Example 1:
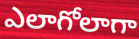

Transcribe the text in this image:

ఎలాగోలాగా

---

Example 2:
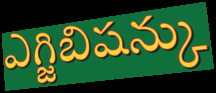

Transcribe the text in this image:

ఎగ్జిబిషన్కు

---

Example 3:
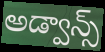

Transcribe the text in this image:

అడ్వాన్స్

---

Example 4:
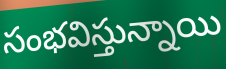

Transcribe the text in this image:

సంభవిస్తున్నాయి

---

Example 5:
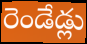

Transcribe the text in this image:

రెండేడ్లు